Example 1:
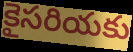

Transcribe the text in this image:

కైసరియకు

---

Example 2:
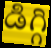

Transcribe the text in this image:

డిగ్గి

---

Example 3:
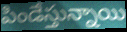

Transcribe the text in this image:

పిండేస్తున్నాయి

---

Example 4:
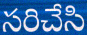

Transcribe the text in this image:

సరిచేసి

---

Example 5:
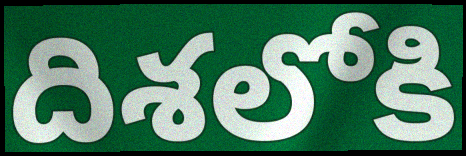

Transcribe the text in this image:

దిశలోకి